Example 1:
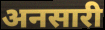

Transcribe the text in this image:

अनसारी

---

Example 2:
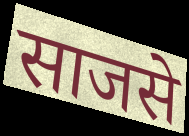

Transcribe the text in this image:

साजसे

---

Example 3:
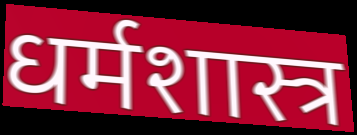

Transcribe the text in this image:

धर्मशास्त्र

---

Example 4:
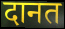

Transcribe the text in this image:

दानत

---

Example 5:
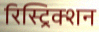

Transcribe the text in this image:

रिस्ट्रिक्शन